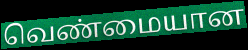
வெண்மையான